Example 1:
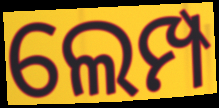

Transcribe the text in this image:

ଲେମ୍ପ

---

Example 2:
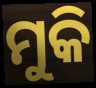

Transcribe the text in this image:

ମୁକି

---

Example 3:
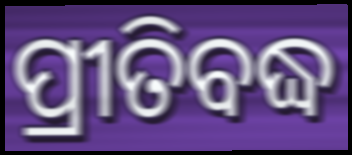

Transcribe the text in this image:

ପ୍ରୀତିବଦ୍ଧ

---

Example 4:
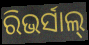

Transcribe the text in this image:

ରିଭର୍ସାଲ୍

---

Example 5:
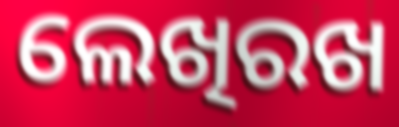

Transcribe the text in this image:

ଲେଖିରଖ